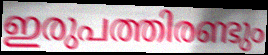
ഇരുപത്തിരണ്ടും